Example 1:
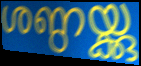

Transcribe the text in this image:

ശണ്ഠയ്ക്കു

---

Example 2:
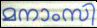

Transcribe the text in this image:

മനാംസി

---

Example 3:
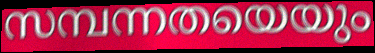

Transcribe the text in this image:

സമ്പന്നതയെയും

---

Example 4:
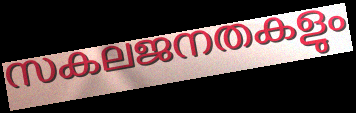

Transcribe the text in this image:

സകലജനതകളും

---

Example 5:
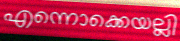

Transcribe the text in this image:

എന്നൊക്കെയല്ലി